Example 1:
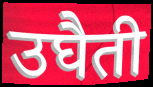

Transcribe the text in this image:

उघैती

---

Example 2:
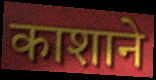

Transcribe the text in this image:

काशाने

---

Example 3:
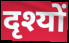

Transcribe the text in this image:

दृश्यों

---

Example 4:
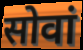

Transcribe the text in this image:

सोवां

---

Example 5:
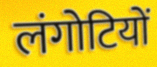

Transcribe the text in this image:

लंगोटियों